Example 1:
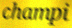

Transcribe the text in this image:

champi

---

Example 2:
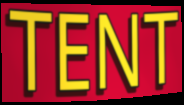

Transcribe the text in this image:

TENT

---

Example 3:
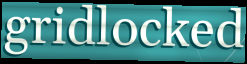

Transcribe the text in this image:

gridlocked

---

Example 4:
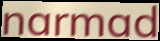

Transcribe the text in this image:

narmad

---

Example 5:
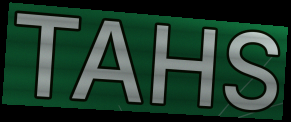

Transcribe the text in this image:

TAHS